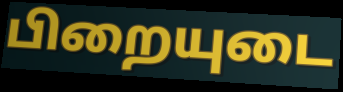
பிறையுடை